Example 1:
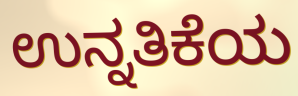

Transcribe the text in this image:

ಉನ್ನತಿಕೆಯ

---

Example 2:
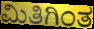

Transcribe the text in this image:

ಮಿತಿಗಿಂತ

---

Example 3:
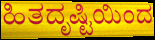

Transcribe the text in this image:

ಹಿತದೃಷ್ಟಿಯಿಂದ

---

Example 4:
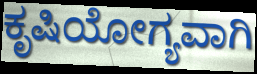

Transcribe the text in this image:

ಕೃಷಿಯೋಗ್ಯವಾಗಿ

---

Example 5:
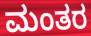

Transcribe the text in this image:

ಮಂತರ